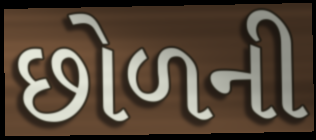
છોળની